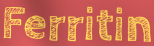
Ferritin